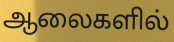
ஆலைகளில்